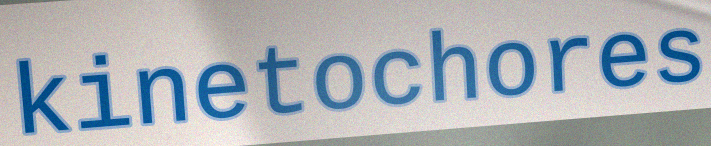
kinetochores